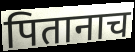
पितानाच